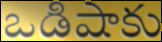
ఒడిషాకు